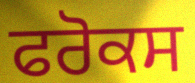
ਫਰੋਕਸ